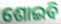
ଶୋଇବି